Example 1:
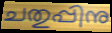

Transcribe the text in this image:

ചതുപ്പിനു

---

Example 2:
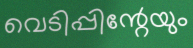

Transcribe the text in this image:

വെടിപ്പിന്റേയും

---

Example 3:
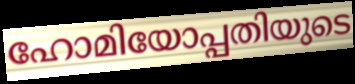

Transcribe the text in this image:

ഹോമിയോപ്പതിയുടെ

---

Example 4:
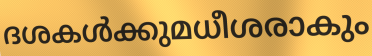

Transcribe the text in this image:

ദശകൾക്കുമധീശരാകും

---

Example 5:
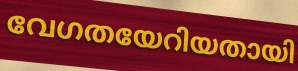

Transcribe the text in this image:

വേഗതയേറിയതായി